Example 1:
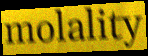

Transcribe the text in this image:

molality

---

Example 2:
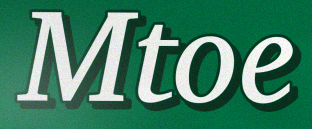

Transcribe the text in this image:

Mtoe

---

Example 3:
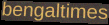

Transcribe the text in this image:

bengaltimes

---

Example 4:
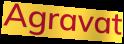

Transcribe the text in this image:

Agravat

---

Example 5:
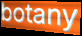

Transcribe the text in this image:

botany